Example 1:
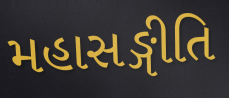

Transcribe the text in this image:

મહાસઙ્ગીતિ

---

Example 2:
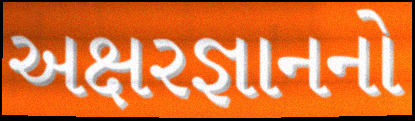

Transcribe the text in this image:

અક્ષરજ્ઞાનનો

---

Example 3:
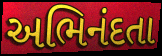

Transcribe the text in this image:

અભિનંદતા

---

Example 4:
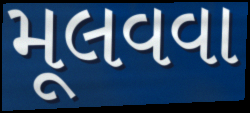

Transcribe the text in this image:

મૂલવવા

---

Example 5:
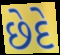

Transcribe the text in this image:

છેદે